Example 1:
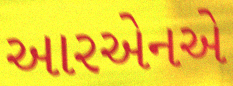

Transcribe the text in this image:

આરએનએ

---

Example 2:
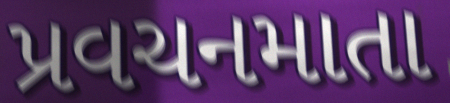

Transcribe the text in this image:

પ્રવચનમાતા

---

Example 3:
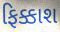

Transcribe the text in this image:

ફિક્કાશ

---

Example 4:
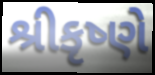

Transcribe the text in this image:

શ્રીકૃષ્ણે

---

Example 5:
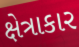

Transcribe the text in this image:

ક્ષેત્રાકાર